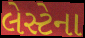
લેસ્ટેના